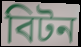
বিটন